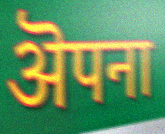
ऄपना